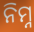
ନିମ୍ନ